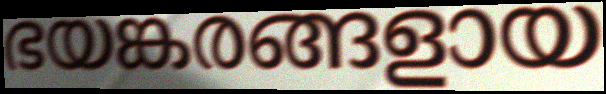
ഭയങ്കരങ്ങളായ